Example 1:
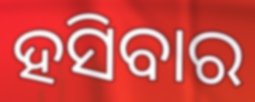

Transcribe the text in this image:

ହସିବାର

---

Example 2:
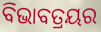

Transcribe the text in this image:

ବିଭାବତ୍ରୟର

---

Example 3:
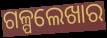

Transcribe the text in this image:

ଗଳ୍ପଲେଖାର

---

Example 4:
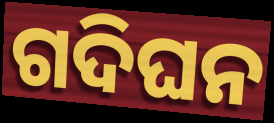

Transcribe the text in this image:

ଗଦିଘନ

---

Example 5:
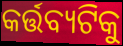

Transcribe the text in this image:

କର୍ତ୍ତବ୍ୟଟିକୁ